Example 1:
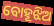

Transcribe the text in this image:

ବୋହୂଝିଅ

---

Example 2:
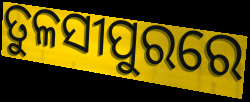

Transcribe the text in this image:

ତୁଳସୀପୁରରେ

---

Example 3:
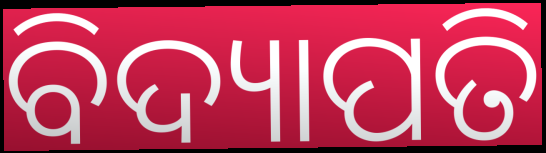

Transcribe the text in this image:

ବିଦ୍ୟାପତି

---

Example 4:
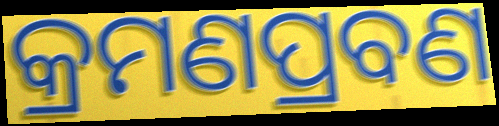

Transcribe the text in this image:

କ୍ରମଣପ୍ରବଣ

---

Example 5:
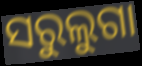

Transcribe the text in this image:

ସରୁଲୁଗା